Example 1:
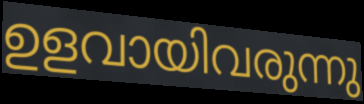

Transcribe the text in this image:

ഉളവായിവരുന്നു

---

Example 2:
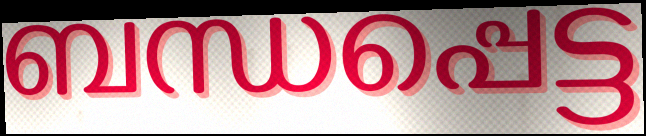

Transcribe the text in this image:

ബന്ധപ്പെട്ട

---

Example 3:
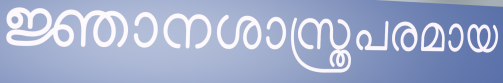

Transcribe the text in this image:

ജ്ഞാനശാസ്ത്രപരമായ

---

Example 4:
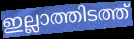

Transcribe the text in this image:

ഇല്ലാത്തിടത്ത്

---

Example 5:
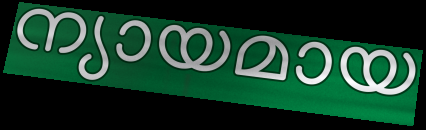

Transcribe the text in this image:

ന്യായമായ